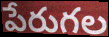
పేరుగల